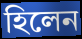
হিলেন